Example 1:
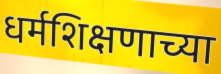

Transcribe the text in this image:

धर्मशिक्षणाच्या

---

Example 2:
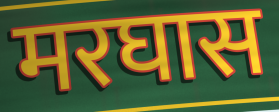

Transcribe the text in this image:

मरघास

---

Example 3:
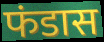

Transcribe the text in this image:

फंडास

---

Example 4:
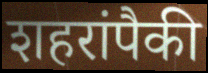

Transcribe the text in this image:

शहरांपैकी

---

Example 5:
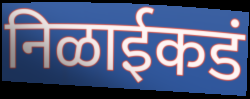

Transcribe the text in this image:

निळाईकडं